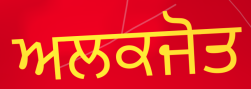
ਅਲਕਜੋਤ